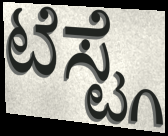
ಟೆಸ್ಟ್ಗೆ